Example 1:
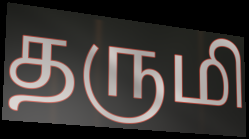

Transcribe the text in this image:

தருமி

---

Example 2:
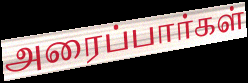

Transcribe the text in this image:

அரைப்பார்கள்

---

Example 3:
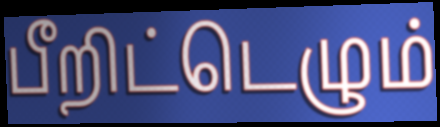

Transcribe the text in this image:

பீறிட்டெழும்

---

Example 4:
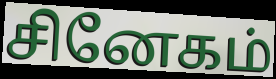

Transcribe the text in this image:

சினேகம்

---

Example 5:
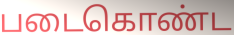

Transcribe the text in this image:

படைகொண்ட